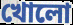
খোলো